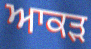
ਆਕੜ